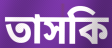
তাসকি